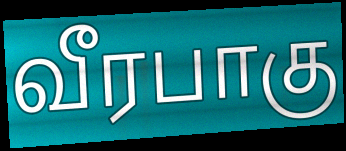
வீரபாகு